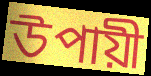
উপায়ী